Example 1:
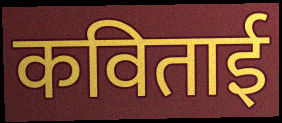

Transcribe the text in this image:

कविताई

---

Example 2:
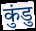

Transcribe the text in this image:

कुंडु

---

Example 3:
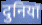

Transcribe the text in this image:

दुनियॉ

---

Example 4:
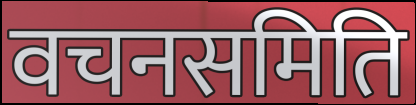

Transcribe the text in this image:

वचनसमिति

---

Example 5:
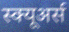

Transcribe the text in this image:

स्क्यूअर्स